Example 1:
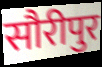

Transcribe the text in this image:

सौरीपुर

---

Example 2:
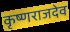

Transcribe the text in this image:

कृष्णराजदेव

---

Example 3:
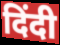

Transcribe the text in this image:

दिंदी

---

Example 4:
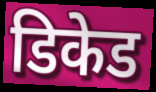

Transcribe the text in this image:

डिकेड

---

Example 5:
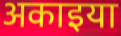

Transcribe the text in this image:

अकाइया